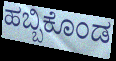
ಹಬ್ಬಿಕೊಂಡ